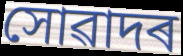
সোৱাদৰ